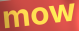
mow